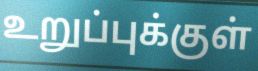
உறுப்புக்குள்